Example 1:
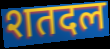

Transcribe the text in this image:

शतदल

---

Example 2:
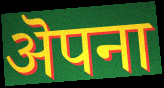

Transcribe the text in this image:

ऄपना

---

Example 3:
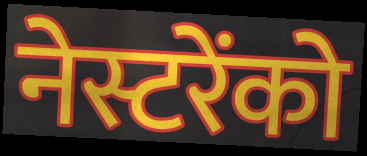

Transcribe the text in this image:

नेस्टरेंको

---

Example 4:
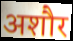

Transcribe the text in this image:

अशौर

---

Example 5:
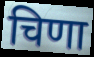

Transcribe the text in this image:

चिणा